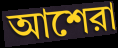
আশেরা